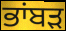
ਭਾਂਬੜ